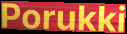
Porukki